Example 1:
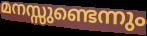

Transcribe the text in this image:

മനസ്സുണ്ടെന്നും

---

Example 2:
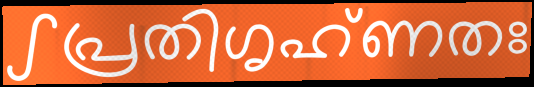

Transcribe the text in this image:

ഽപ്രതിഗൃഹ്ണതഃ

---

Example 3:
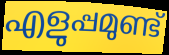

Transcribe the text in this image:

എളുപ്പമുണ്ട്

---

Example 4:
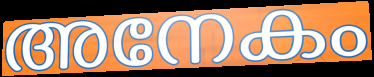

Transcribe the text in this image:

അനേകം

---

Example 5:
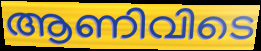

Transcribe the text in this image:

ആണിവിടെ